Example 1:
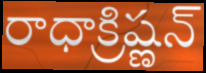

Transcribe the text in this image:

రాధాక్రిష్ణన్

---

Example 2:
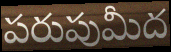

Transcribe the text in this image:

పరుపుమీద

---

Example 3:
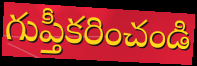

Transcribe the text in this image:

గుప్తీకరించండి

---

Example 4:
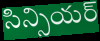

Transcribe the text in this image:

సిన్సియర్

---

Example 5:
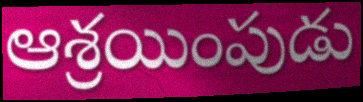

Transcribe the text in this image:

ఆశ్రయింపుడు